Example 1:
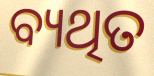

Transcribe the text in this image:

ବ୍ୟଥିତ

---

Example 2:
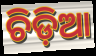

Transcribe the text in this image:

ଚିଡ଼ିଆ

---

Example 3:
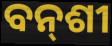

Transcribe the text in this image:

ବନ୍‍ଶୀ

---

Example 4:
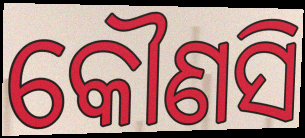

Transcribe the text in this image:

କୌଣସି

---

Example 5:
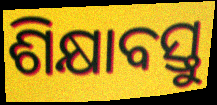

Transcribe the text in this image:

ଶିକ୍ଷାବସ୍ତୁ